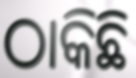
ଠାକିଛି